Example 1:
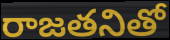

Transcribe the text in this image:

రాజతనితో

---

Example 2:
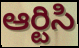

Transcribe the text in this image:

ఆర్టిసి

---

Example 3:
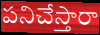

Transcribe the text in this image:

పనిచేస్తారా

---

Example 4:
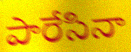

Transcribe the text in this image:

పారేసినా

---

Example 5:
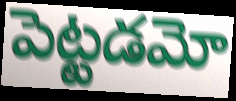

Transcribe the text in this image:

పెట్టడమో